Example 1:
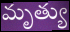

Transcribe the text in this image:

మృత్యు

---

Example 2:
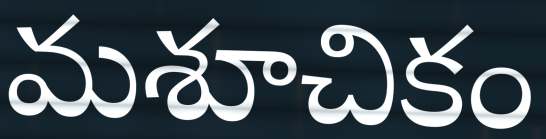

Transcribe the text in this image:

మశూచికం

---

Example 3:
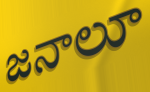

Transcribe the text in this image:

జనాలూ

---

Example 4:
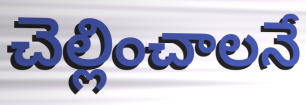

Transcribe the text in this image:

చెల్లించాలనే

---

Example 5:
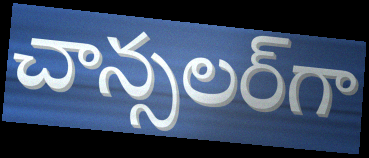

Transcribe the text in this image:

చాన్సలర్‌గా